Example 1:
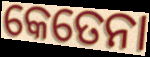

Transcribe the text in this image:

କେତେନା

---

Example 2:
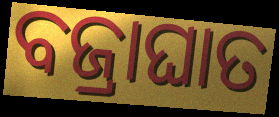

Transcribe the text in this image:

ବଜ୍ରାଘାତ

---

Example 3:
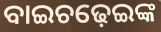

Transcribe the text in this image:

ବାଇଚଢ଼େଇଙ୍କ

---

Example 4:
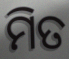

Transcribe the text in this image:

ମିତ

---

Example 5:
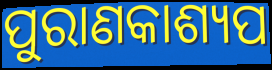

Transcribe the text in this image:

ପୁରାଣକାଶ୍ୟପ